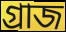
গ্ৰাজ